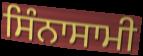
ਸਿੰਨਾਸਾਮੀ